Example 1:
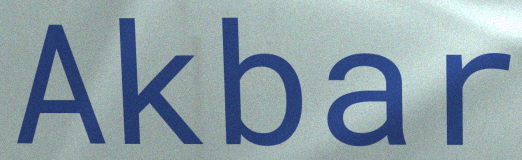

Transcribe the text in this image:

Akbar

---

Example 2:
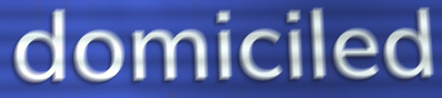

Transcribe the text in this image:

domiciled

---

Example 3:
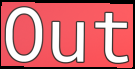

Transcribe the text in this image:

Out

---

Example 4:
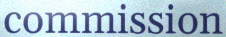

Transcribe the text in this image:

commission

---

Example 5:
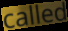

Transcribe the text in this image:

called